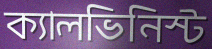
ক্যালভিনিস্ট